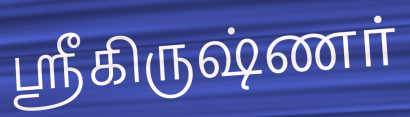
ஶ்ரீகிருஷ்ணர்